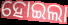
ହୋଇଲା